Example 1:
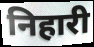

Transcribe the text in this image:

निहारी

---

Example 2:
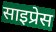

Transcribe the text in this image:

साइप्रेस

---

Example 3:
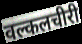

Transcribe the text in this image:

वल्कलचीरी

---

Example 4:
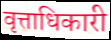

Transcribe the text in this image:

वृत्ताधिकारी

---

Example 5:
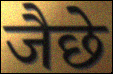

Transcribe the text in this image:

जैछे